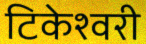
टिकेश्वरी